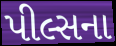
પીલ્સના